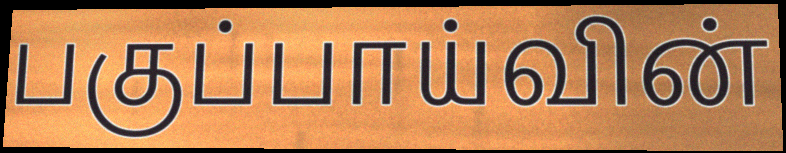
பகுப்பாய்வின்